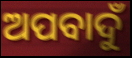
ଅପବାଦୁଁ